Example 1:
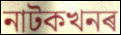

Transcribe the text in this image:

নাটকখনৰ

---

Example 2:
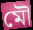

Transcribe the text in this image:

মৌ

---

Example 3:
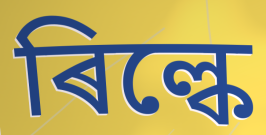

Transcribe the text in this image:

ৰিল্কে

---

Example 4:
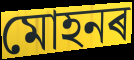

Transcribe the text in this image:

মোহনৰ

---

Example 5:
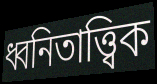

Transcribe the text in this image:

ধ্বনিতাত্ত্বিক